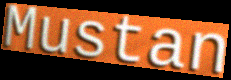
Mustan